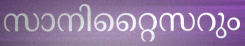
സാനിറ്റൈസറും